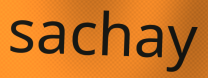
sachay